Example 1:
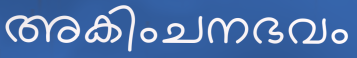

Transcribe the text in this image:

അകിംചനഭവം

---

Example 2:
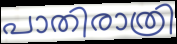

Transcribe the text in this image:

പാതിരാത്രി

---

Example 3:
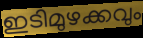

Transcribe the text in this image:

ഇടിമുഴക്കവും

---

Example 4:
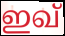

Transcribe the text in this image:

ഇഖ്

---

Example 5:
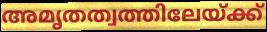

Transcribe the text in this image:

അമൃതത്വത്തിലേയ്ക്ക്